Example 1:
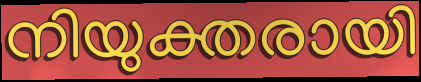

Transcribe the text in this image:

നിയുക്തരായി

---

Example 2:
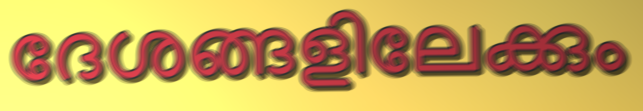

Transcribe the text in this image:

ദേശങ്ങളിലേക്കും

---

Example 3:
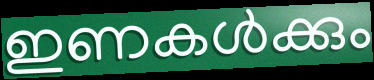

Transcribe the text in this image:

ഇണകൾക്കും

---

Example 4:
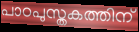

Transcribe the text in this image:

പാഠപുസ്തകത്തിന്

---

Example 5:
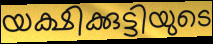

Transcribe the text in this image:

യക്ഷിക്കുട്ടിയുടെ